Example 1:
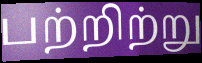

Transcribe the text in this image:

பற்றிற்று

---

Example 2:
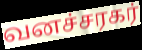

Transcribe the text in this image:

வனச்சரகர்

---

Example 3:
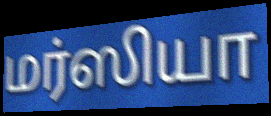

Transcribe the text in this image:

மர்ஸியா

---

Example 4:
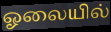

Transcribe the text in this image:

ஓலையில்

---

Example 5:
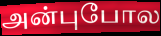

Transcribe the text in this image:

அன்புபோல